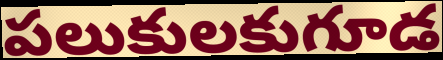
పలుకులకుగూడ